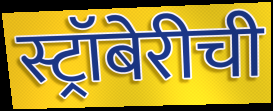
स्ट्रॉबेरीची